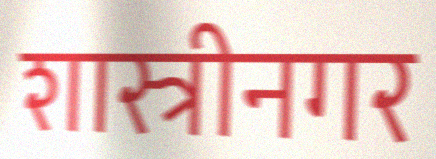
शास्त्रीनगर